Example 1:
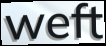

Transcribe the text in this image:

weft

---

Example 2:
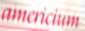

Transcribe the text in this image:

americium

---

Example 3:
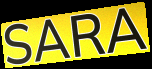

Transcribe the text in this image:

SARA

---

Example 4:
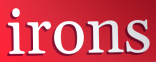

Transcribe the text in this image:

irons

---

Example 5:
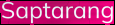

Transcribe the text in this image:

Saptarang